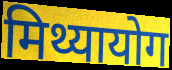
मिथ्यायोग